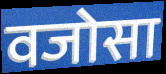
वजोसा